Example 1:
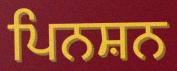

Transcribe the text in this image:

ਪਿਨਸ਼ਨ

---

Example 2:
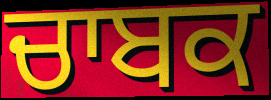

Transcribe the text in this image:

ਚਾਬਕ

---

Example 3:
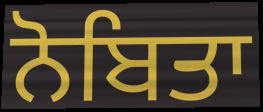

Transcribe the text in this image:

ਨੋਬਿਤਾ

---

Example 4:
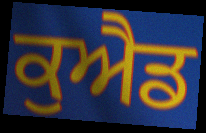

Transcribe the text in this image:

ਕੁਐਡ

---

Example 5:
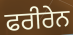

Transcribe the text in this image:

ਫਰੀਰੇਨ